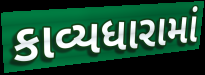
કાવ્યધારામાં